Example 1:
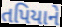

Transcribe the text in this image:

તપિયાને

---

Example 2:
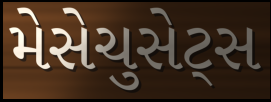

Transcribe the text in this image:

મેસેચુસેટ્સ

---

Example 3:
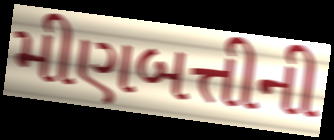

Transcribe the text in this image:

મીણબત્તીની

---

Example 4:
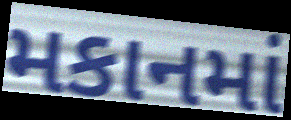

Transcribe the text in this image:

મકાનમાં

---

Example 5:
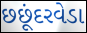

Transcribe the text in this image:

છછૂંદરવેડા